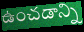
ఉంచడాన్ని